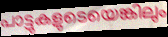
പാട്ടുകളുടെയെങ്കിലും